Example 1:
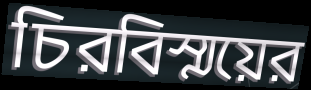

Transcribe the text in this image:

চিরবিস্ময়ের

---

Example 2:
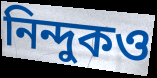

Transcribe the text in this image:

নিন্দুকও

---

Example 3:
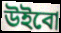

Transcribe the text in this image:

উইবো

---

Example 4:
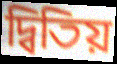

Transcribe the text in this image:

দ্বিতিয়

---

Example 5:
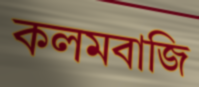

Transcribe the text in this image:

কলমবাজি